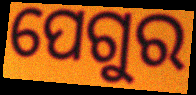
ପେଗୁର